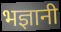
भज्ञानी